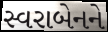
સ્વરાબેનને